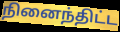
நினைந்திட்ட